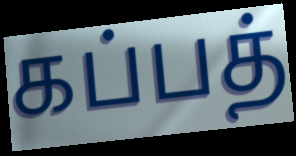
கப்பத்